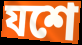
যশে